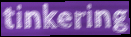
tinkering